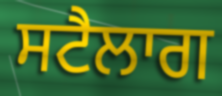
ਸਟੈਲਾਗ